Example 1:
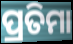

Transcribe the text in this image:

ପ୍ରତିମା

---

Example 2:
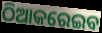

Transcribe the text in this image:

ଠିଆକରେଇବ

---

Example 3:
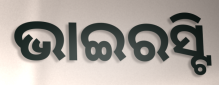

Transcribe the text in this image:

ଭାଇରସ୍ଟି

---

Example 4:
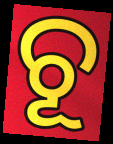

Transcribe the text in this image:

ଚୂ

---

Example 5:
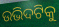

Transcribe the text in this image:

ଉଭିଦଟିକୁ